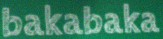
bakabaka